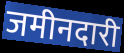
जमीनदारी